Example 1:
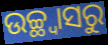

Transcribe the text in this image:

ଉଚ୍ଛ୍ୱାସରୁ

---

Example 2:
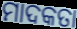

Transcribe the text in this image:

ମାଦକତା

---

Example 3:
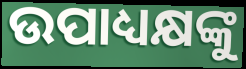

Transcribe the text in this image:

ଉପାଧ୍ୟକ୍ଷଙ୍କୁ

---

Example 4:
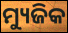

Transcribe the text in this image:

ମ୍ୟୁଜିକ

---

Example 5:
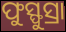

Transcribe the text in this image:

ଫୁସ୍ଫୁସ୍ରା